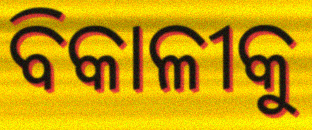
ବିକାଳୀକୁ